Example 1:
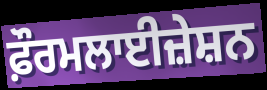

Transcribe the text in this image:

ਫ਼ੌਰਮਲਾਈਜ਼ੇਸ਼ਨ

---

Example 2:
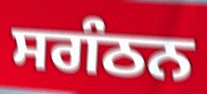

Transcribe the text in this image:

ਸਗੰਠਨ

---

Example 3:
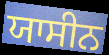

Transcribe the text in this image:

ਯਾਸੀਨ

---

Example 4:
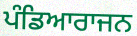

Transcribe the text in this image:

ਪੰਡਿਆਰਾਜਨ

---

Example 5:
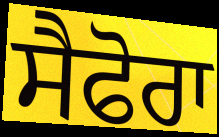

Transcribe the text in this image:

ਸੈਫੋਰਾ